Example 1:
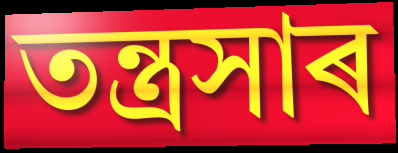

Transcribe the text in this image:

তন্ত্ৰসাৰ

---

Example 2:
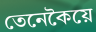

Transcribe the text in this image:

তেনেকৈয়ে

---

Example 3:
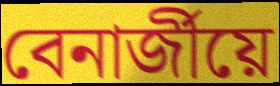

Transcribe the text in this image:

বেনাৰ্জীয়ে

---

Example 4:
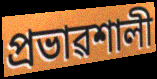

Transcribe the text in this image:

প্ৰভাৱশালী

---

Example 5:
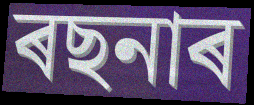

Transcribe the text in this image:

ৰছনাৰ